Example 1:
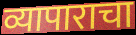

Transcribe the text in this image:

व्यापाराचा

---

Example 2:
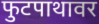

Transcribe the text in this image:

फुटपाथावर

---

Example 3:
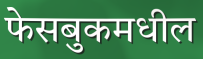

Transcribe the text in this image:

फेसबुकमधील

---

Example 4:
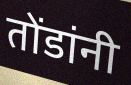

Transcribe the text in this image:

तोंडांनी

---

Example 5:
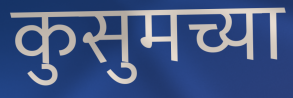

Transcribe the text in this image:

कुसुमच्या